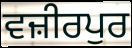
ਵਜ਼ੀਰਪੁਰ